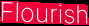
Flourish